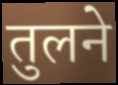
तुलने